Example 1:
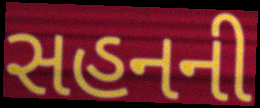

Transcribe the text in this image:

સહનની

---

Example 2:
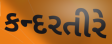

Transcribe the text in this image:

કન્દરતીરે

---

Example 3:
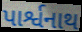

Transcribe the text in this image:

પાર્શ્વનાથ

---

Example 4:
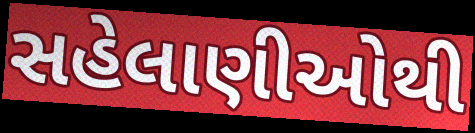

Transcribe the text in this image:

સહેલાણીઓથી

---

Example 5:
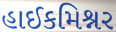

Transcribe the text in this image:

હાઈકમિશ્નર